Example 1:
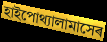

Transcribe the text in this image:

হাইপোথ্যালামাসেৰ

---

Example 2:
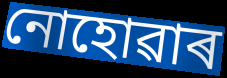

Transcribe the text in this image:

নোহোৱাৰ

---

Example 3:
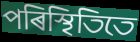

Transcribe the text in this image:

পৰিস্থিতিতে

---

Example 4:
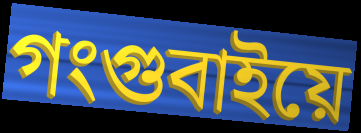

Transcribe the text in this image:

গংগুবাইয়ে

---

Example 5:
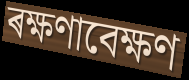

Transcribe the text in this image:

ৰক্ষণাবেক্ষণ